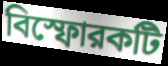
বিস্ফোরকটি